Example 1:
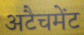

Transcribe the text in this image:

अटैचमेंट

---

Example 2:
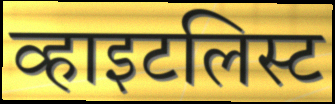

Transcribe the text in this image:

व्हाइटलिस्ट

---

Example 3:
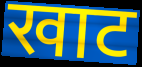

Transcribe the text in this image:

खाट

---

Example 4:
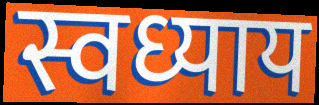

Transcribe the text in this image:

स्वध्याय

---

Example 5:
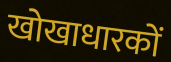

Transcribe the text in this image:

खोखाधारकों